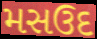
મસઉદ